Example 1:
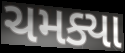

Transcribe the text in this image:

ચમક્યા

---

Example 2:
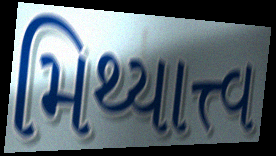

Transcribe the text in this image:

મિથ્યાત્ત્વ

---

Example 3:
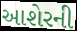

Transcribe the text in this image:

આશેરની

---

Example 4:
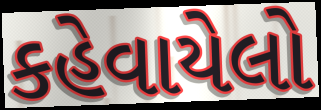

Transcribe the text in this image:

કહેવાયેલો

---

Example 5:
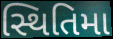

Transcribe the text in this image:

સ્થિતિમા